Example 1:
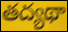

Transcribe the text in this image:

తద్యథా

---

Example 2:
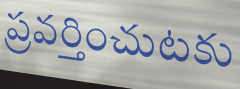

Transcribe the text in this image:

ప్రవర్తించుటకు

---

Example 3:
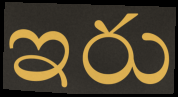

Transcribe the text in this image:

ఇరు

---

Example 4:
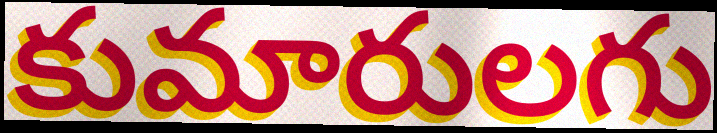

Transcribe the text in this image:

కుమారులగు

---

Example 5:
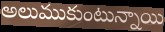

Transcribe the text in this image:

అలుముకుంటున్నాయి